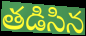
తడిసిన